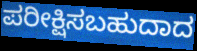
ಪರೀಕ್ಷಿಸಬಹುದಾದ